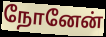
நோனேன்